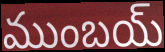
ముంబయ్